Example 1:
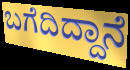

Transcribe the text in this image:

ಬಗೆದಿದ್ದಾನೆ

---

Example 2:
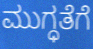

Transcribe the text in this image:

ಮುಗ್ಧತೆಗೆ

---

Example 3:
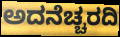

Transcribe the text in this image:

ಅದನೆಚ್ಚರದಿ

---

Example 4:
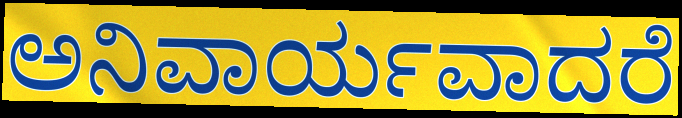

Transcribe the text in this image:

ಅನಿವಾರ್ಯವಾದರೆ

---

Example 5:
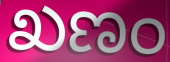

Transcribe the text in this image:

ಖಣಂ